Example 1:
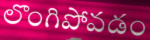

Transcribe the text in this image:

లొంగిపోవడం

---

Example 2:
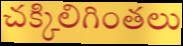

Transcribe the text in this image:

చక్కిలిగింతలు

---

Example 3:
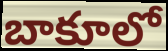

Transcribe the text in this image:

బాకూలో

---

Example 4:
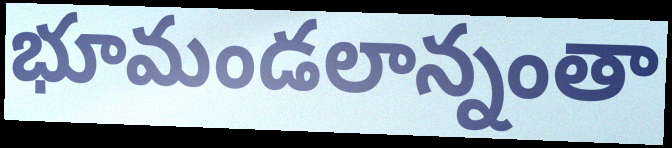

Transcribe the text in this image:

భూమండలాన్నంతా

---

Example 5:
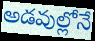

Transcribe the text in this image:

అడవుల్లోనే